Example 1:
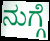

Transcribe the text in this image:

ನುಗ್ಗೆ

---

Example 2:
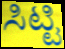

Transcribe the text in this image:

ಸಿಟ್ಟಿ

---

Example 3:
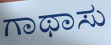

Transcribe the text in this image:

ಗಾಥಾಸು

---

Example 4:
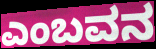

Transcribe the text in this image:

ಎಂಬವನ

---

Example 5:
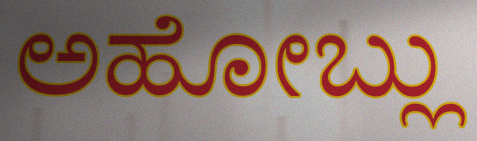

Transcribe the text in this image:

ಅಹೋಬ್ಲು